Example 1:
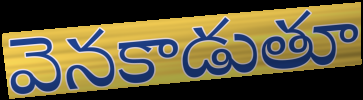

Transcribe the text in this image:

వెనకాడుతూ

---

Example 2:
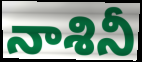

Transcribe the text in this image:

నాశినీ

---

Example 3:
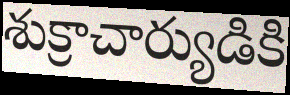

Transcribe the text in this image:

శుక్రాచార్యుడికి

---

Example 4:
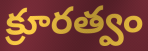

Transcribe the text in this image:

క్రూరత్వం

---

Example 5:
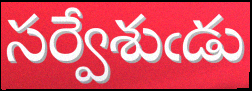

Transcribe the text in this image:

సర్వేశుఁడు